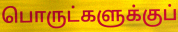
பொருட்களுக்குப்